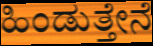
ಹಿಂಡುತ್ತೇನೆ